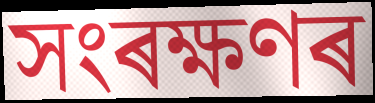
সংৰক্ষণৰ